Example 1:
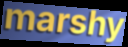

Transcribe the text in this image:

marshy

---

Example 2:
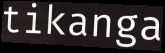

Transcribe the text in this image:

tikanga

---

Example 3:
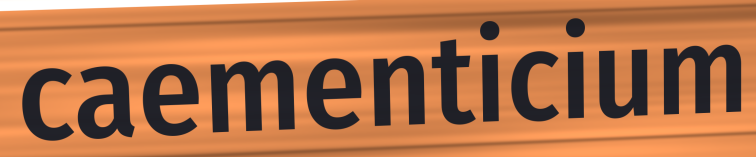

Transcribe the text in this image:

caementicium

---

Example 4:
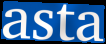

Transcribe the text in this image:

asta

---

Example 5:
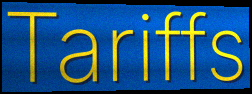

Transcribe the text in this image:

Tariffs